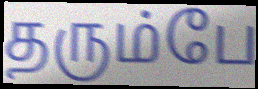
தரும்பே